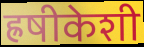
ह्रषीकेशी